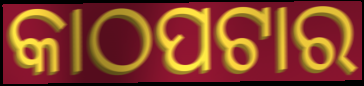
କାଠପଟାର